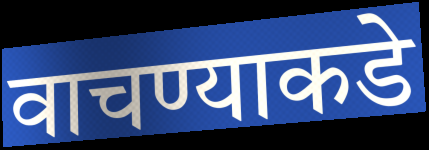
वाचण्याकडे